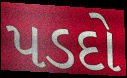
પડદો